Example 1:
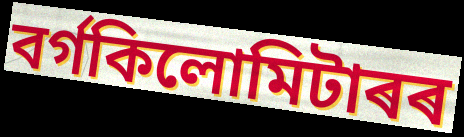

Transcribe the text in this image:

বৰ্গকিলোমিটাৰৰ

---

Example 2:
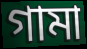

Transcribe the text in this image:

গামা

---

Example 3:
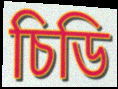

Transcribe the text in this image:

চিডি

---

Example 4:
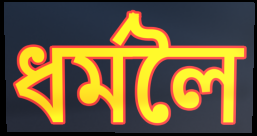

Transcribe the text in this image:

ধৰ্মলৈ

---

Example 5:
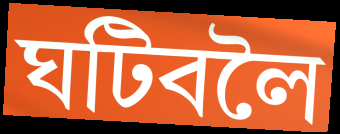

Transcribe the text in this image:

ঘটিবলৈ